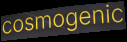
cosmogenic